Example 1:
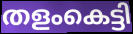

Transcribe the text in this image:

തളംകെട്ടി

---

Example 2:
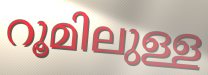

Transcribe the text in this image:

റൂമിലുള്ള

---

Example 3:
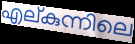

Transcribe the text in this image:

എല്കുന്നിലെ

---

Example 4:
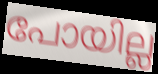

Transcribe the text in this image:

പോയില്ല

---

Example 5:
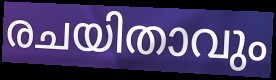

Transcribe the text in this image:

രചയിതാവും